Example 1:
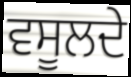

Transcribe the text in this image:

ਵਸੂਲਦੇ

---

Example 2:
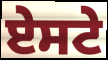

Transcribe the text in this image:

ਏਸਟੇ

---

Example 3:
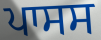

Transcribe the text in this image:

ਪਾਸਸ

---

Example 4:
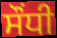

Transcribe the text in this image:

ਸੌਂਧੀ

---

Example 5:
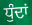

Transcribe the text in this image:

ਧੁੰਦਾਂ